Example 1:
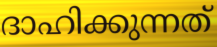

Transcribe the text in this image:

ദാഹിക്കുന്നത്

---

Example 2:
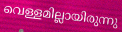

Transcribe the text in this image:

വെള്ളമില്ലായിരുന്നു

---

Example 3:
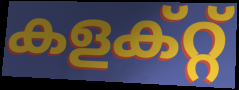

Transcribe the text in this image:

കളക്റ്റ്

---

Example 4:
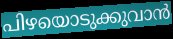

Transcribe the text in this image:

പിഴയൊടുക്കുവാൻ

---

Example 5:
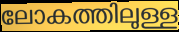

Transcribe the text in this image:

ലോകത്തിലുള്ള